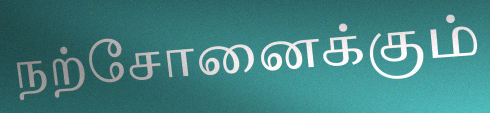
நற்சோனைக்கும்